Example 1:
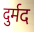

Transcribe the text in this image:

दुर्मद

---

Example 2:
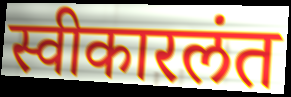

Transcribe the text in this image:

स्वीकारलंत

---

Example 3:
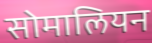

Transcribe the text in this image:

सोमालियन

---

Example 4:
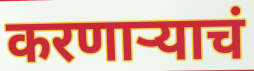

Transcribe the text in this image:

करणाऱ्याचं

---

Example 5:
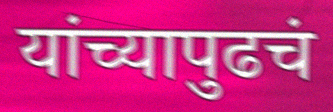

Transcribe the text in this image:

यांच्यापुढचं